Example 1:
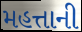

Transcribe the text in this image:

મહત્તાની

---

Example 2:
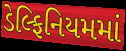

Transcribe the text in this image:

ડેલ્ફિનિયમમાં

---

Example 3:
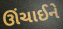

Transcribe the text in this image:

ઊંચાઈને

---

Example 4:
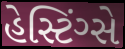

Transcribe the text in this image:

હેસ્ટિંગ્સે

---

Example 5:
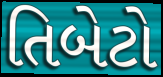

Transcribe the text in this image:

તિબેટો